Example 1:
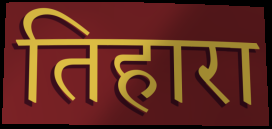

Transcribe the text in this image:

तिहारा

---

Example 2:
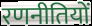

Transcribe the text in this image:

रणनीतियों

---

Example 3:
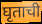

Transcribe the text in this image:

घृताची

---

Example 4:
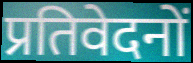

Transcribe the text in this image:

प्रतिवेदनों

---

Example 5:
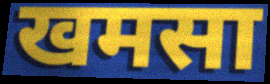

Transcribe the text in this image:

खमसा